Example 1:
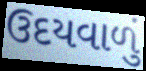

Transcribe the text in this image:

ઉદયવાળું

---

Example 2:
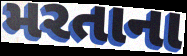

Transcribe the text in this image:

મરતાના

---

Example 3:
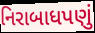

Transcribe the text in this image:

નિરાબાધપણું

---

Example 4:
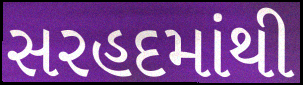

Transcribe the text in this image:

સરહદમાંથી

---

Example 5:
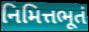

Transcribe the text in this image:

નિમિત્તભૂતં